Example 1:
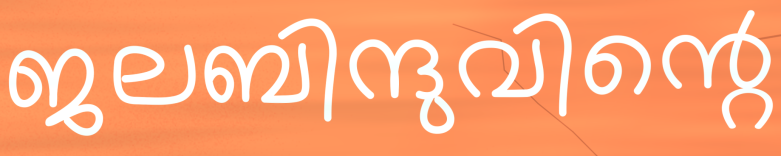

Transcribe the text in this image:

ജലബിന്ദുവിന്റെ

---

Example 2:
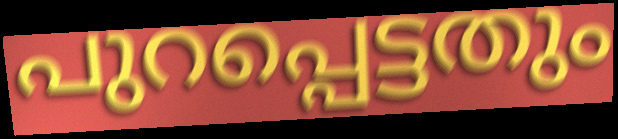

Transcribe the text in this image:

പുറപ്പെട്ടതും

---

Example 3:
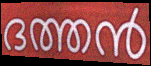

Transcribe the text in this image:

ദത്തൻ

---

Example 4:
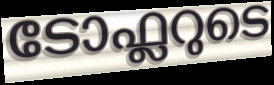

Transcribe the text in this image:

ടോഫ്ലറുടെ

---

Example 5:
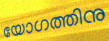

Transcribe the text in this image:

യോഗത്തിനു